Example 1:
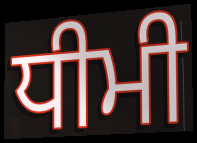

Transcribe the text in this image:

ਧੀਮੀ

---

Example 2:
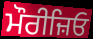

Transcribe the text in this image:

ਮੌਰੀਜ਼ਿਓ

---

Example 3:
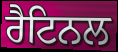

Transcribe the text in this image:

ਰੈਟਿਨਲ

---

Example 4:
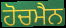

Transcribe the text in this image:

ਹੋਚਮੈਨ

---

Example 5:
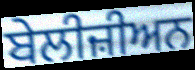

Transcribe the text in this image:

ਬੇਲੀਜ਼ੀਅਨ